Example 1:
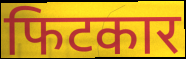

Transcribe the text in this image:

फिटकार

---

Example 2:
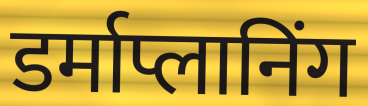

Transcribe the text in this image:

डर्माप्लानिंग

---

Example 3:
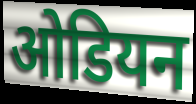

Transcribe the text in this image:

ओडियन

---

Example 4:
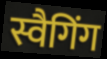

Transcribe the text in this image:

स्वैगिंग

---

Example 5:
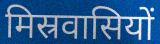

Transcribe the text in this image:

मिस्रवासियों